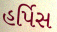
હર્પિસ